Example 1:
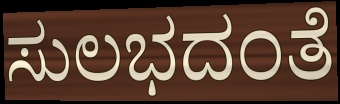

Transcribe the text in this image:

ಸುಲಭದಂತೆ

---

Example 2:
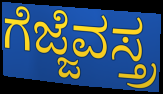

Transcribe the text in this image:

ಗೆಜ್ಜೆವಸ್ತ್ರ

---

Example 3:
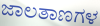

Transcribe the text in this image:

ಜಾಲತಾಣಗಳ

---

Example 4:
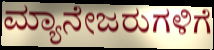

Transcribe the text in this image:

ಮ್ಯಾನೇಜರುಗಳಿಗೆ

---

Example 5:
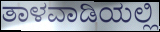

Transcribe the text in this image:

ತಾಳವಾಡಿಯಲ್ಲಿ